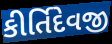
કીર્તિદેવજી